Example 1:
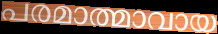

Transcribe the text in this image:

പരമാത്മാവായ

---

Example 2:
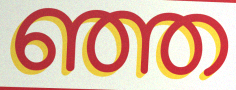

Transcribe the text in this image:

ഞ്ഞ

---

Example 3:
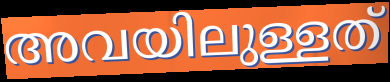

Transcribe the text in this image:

അവയിലുള്ളത്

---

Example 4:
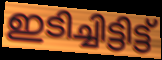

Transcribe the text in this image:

ഇടിച്ചിട്ടിട്ട്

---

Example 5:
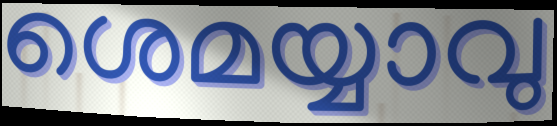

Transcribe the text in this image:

ശെമയ്യാവു